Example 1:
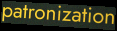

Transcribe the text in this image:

patronization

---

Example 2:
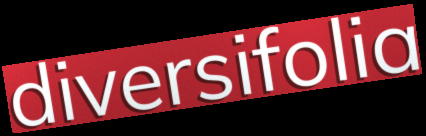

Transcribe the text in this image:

diversifolia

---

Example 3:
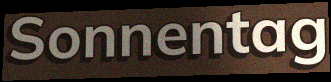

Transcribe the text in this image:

Sonnentag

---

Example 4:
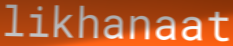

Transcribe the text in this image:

likhanaat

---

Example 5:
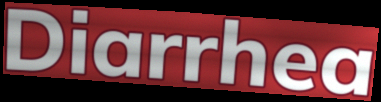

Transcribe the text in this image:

Diarrhea